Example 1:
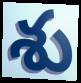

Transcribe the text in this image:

శు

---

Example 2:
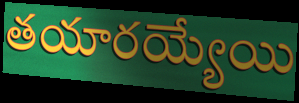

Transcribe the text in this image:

తయారయ్యేయి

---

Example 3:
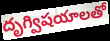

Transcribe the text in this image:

దృగ్విషయాలతో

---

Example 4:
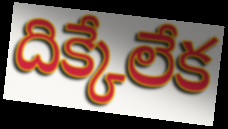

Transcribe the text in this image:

దిక్కేలేక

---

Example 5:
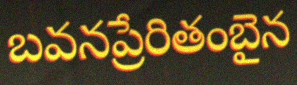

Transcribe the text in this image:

బవనప్రేరితంబైన